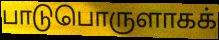
பாடுபொருளாகக்